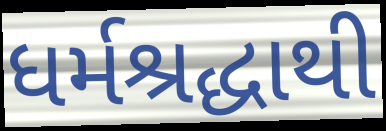
ધર્મશ્રદ્ધાથી